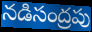
నడిసంద్రపు